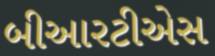
બીઆરટીએસ